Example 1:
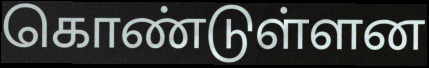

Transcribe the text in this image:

கொண்டுள்ளன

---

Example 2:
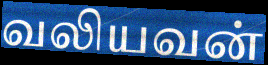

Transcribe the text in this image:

வலியவன்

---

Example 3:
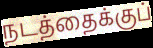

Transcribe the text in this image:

நடத்தைக்குப்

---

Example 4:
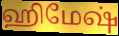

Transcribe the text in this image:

ஹிமேஷ்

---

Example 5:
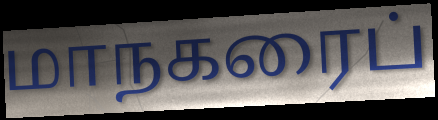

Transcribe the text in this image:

மாநகரைப்